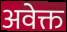
अवेक्त